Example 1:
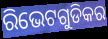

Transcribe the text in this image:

ରିଭେଟଗୁଡିକର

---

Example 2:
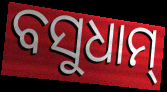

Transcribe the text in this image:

ବସୁଧାମ୍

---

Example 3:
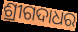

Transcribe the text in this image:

ଶ୍ରୀଗଦାଧର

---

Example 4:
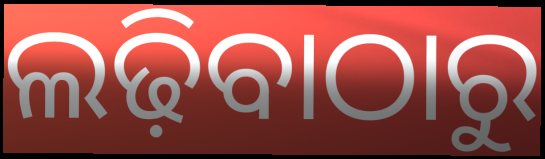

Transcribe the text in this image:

ଲଢ଼ିବାଠାରୁ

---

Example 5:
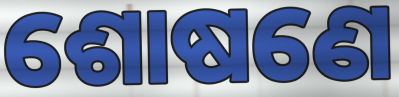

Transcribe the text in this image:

ଶୋଷଣେ